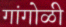
गांगोळी